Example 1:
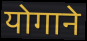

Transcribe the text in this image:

योगाने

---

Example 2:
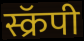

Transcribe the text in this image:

स्क्रॅपी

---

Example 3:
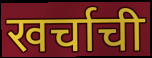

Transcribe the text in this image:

खर्चाची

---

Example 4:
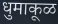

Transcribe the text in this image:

धुमाकूळ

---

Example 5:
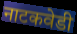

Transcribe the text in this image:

नाटकवेडी